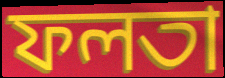
ফলতা